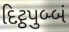
દિટ્ઠપુબ્બં